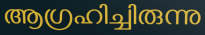
ആഗ്രഹിച്ചിരുന്നു